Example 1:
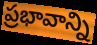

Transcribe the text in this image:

ప్రభావాన్ని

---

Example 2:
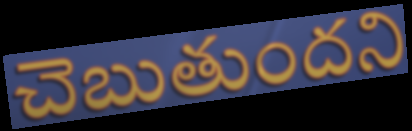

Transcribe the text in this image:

చెబుతుందని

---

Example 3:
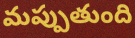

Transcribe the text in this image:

మప్పుతుంది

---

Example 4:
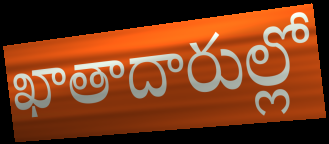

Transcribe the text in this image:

ఖాతాదారుల్లో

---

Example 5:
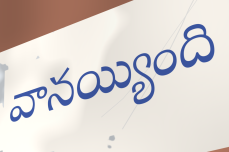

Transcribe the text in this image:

వానయ్యింది